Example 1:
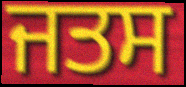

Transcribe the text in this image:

ਜਤਸ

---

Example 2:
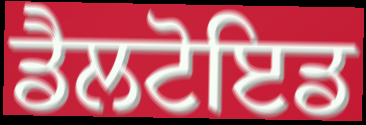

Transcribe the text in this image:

ਡੈਲਟੋਇਡ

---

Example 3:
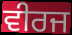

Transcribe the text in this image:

ਵੀਰਜ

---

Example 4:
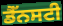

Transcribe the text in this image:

ਡੈੱਨਸਟੀ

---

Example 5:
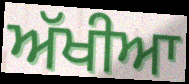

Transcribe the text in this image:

ਅੱਖੀਆ